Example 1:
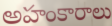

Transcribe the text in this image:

అహంకారాలు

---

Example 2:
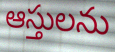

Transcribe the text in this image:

ఆస్తులను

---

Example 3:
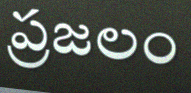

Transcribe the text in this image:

ప్రజలం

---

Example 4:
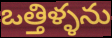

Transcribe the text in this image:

ఒత్తిళ్ళను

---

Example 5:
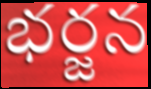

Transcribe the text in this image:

భర్జన